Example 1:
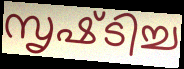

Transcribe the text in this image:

സൃഷ്‌ടിച്ച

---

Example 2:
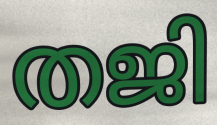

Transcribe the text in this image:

തജി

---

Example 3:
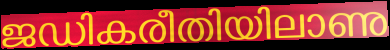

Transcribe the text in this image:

ജഡികരീതിയിലാണു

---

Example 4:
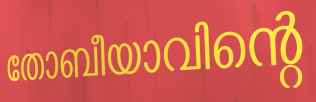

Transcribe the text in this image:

തോബീയാവിന്റെ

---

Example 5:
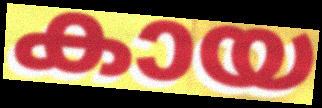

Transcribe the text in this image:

കായ